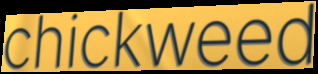
chickweed